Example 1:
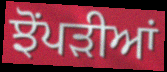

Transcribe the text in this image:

ਝੋਂਪੜੀਆਂ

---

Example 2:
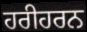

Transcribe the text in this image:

ਹਰੀਹਰਨ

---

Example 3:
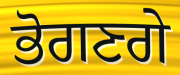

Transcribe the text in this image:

ਭੋਗਣਗੇ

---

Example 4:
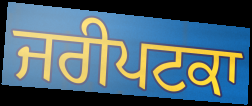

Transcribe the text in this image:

ਜਰੀਪਟਕਾ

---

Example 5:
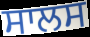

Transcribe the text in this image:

ਸਾਲਸ